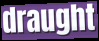
draught